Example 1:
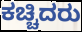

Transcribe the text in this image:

ಕಚ್ಚಿದರು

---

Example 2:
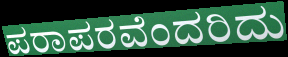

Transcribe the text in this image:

ಪರಾಪರವೆಂದರಿದು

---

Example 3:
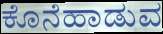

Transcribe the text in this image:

ಕೊನೆಹಾಡುವ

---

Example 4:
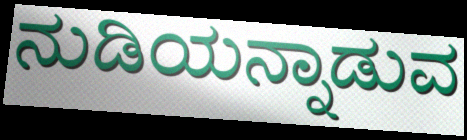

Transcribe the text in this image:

ನುಡಿಯನ್ನಾಡುವ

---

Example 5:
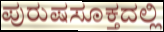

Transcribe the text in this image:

ಪುರುಷಸೂಕ್ತದಲ್ಲಿ